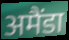
अमैंडा